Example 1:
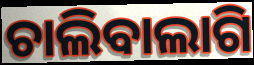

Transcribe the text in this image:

ଚାଲିବାଲାଗି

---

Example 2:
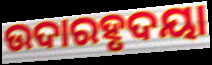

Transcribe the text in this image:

ଉଦାରହୃଦୟା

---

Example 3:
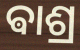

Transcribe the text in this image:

ଵାଶ୍ର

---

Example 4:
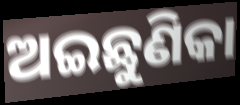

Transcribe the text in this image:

ଅଇଛୁଣିକା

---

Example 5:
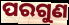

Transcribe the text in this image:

ପରଗୁଣ